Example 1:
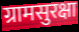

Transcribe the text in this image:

ग्रामसुरक्षा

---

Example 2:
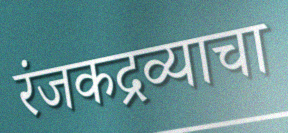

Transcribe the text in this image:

रंजकद्रव्याचा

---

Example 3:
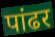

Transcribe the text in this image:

पांढर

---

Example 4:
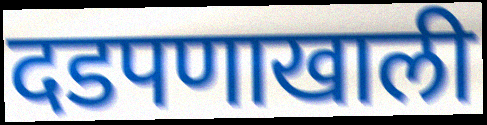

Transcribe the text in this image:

दडपणाखाली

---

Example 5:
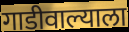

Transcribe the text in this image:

गाडीवाल्याला